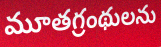
మూతగ్రంథులను